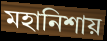
মহানিশায়